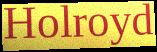
Holroyd